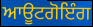
ਆਊਟਗੋਇੰਗ